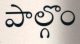
పాల్గొం